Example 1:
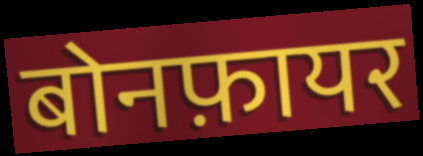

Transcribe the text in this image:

बोनफ़ायर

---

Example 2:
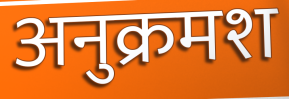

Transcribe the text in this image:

अनुक्रमश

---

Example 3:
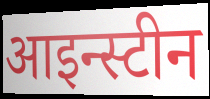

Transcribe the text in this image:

आइन्स्टीन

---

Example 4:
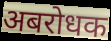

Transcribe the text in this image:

अबरोधक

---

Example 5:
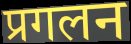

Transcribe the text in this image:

प्रगलन